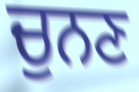
ਚੁਨਣ